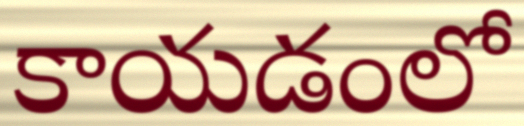
కాయడంలో